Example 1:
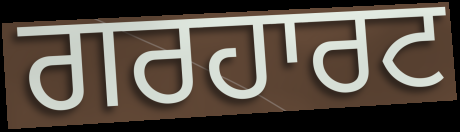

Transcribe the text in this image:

ਗਰਹਾਰਟ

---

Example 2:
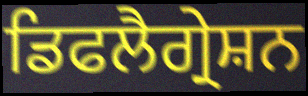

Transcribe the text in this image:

ਡਿਫਲੈਗ੍ਰੇਸ਼ਨ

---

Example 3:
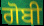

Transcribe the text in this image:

ਗੋਬੀ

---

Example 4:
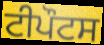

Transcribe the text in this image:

ਟੀਪੌਟਸ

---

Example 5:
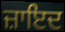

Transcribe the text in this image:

ਜ਼ਾਇਦ